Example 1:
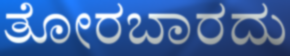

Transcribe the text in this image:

ತೋರಬಾರದು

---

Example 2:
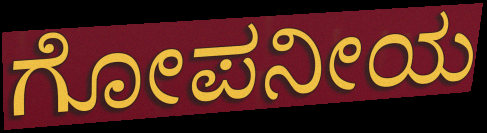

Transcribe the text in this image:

ಗೋಪನೀಯ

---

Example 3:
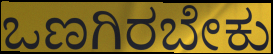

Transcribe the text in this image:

ಒಣಗಿರಬೇಕು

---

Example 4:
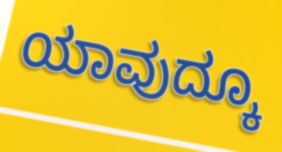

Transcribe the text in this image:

ಯಾವುದ್ಕೂ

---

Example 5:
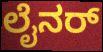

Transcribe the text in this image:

ಲೈನರ್